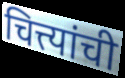
चित्त्यांची